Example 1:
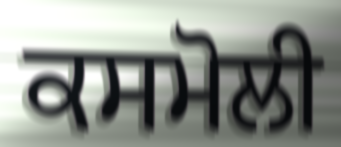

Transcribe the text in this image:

ਕਸਮੋਲੀ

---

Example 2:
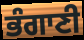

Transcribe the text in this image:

ਭੰਗਾਣੀ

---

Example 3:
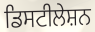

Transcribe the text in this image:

ਡਿਸਟੀਲੇਸ਼ਨ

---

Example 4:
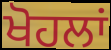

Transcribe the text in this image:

ਖੋਹਲਾਂ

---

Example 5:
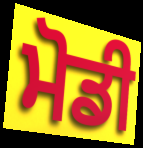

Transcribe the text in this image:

ਮੋਡੀ